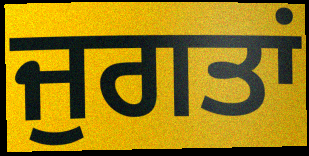
ਜੁਗਤਾਂ